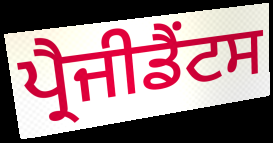
ਪ੍ਰੈਜੀਡੈਂਟਸ